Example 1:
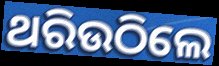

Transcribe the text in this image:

ଥରିଉଠିଲେ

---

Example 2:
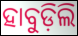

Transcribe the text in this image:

ହାବୁଡ଼ିଲି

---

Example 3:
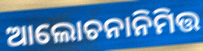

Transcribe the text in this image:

ଆଲୋଚନାନିମିତ୍ତ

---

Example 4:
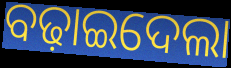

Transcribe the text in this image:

ବଢ଼ାଇଦେଲା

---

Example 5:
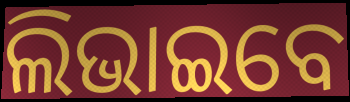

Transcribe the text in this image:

ଲିଭାଇବେ